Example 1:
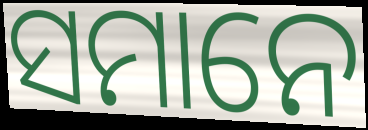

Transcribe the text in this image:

ସମାନେ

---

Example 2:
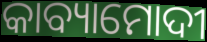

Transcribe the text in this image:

କାବ୍ୟାମୋଦୀ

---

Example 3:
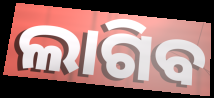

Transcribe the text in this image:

ଲାଗିବ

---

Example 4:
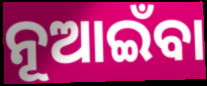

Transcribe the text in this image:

ନୂଆଇଁବା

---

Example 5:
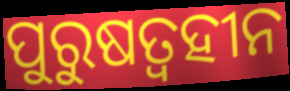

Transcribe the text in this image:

ପୁରୁଷତ୍ୱହୀନ